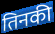
तिनकी